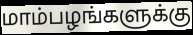
மாம்பழங்களுக்கு